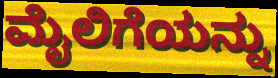
ಮೈಲಿಗೆಯನ್ನು